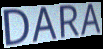
DARA